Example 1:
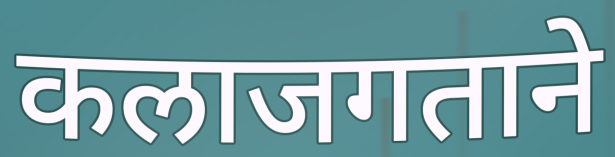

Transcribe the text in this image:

कलाजगताने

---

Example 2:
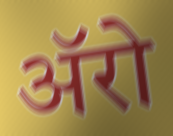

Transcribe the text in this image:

ॲरो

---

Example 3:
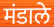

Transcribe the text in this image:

मंडाले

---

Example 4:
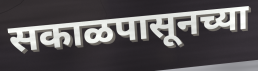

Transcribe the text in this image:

सकाळपासूनच्या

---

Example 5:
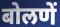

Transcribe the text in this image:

बोलणें